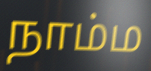
நாம்ம